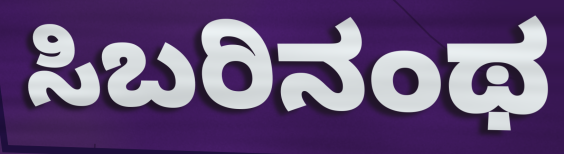
ಸಿಬರಿನಂಥ